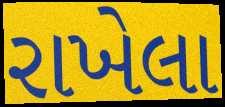
રાખેલા